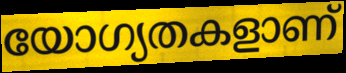
യോഗ്യതകളാണ്